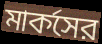
মার্কসের